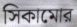
সিকামোর